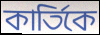
কার্তিকে